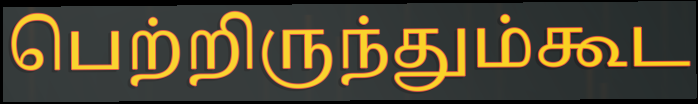
பெற்றிருந்தும்கூட